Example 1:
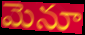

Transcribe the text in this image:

మెనూ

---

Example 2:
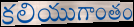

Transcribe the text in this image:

కలియుగాంతం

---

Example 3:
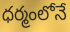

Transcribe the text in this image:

ధర్మంలోనే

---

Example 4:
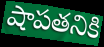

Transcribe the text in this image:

షాపతనికి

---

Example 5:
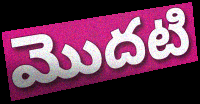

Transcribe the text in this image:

మొదటి